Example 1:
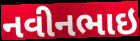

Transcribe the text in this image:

નવીનભાઇ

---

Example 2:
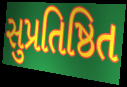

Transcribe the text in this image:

સુપ્રતિષ્ઠિત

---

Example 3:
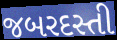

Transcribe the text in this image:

જબરદસ્તી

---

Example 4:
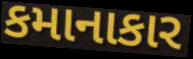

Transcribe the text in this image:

કમાનાકાર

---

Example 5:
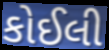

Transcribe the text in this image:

કોઈલી